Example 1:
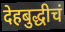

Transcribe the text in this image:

देहबुद्धीचं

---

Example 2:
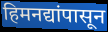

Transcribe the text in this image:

हिमनद्यांपासून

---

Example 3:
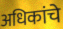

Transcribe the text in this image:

अधिकांचे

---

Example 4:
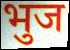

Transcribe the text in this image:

भुज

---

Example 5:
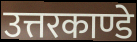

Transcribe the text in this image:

उत्तरकाण्डे